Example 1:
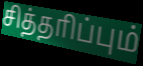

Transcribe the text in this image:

சித்தரிப்பும்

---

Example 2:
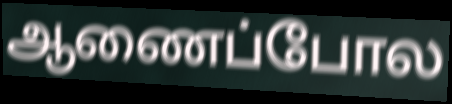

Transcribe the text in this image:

ஆணைப்போல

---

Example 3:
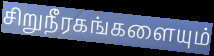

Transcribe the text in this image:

சிறுநீரகங்களையும்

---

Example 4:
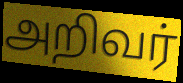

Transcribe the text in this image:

அறிவர்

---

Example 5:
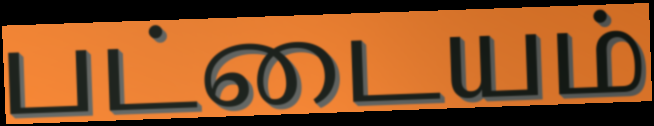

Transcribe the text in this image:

பட்டையம்